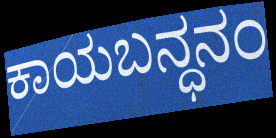
ಕಾಯಬನ್ಧನಂ